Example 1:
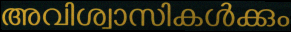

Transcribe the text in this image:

അവിശ്വാസികൾക്കും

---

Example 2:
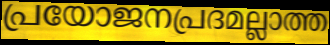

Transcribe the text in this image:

പ്രയോജനപ്രദമല്ലാത്ത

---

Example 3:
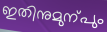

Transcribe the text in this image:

ഇതിനുമുന്പും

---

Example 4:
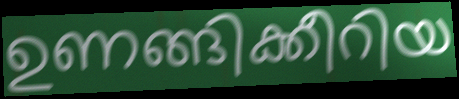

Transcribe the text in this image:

ഉണങ്ങിക്കീറിയ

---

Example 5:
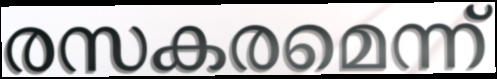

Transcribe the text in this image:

രസകരമെന്ന്